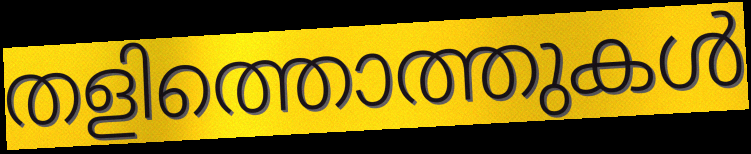
തളിത്തൊത്തുകൾ